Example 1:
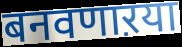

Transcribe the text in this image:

बनवणाऱया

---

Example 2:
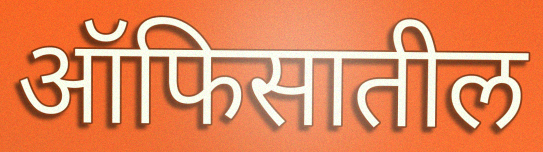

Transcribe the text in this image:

ऑफिसातील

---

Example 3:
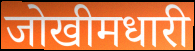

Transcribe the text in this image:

जोखीमधारी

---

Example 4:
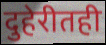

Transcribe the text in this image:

दुहेरीतही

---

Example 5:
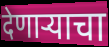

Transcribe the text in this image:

देणार्‍याचा